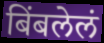
बिंबलेलं